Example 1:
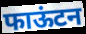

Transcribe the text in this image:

फाऊंटन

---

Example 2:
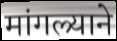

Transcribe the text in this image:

मांगल्याने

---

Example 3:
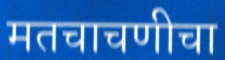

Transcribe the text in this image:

मतचाचणीचा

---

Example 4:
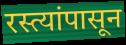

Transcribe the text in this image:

रस्त्यांपासून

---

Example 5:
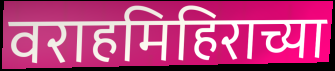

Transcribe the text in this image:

वराहमिहिराच्या